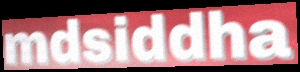
mdsiddha